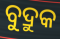
ବୁଦ୍ରୁକ